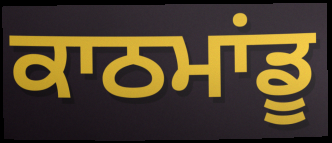
ਕਾਠਮਾਂਡੂ